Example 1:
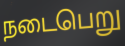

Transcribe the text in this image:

நடைபெறு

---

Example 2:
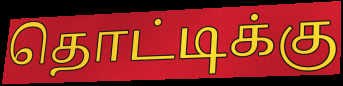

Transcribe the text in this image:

தொட்டிக்கு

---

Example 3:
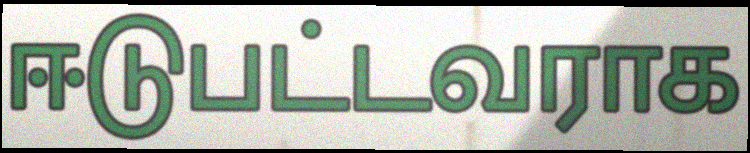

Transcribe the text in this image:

ஈடுபட்டவராக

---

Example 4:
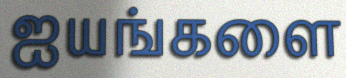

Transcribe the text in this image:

ஐயங்களை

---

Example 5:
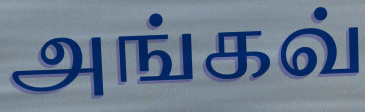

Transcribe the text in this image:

அங்கவ்